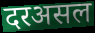
दरअसल